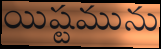
యిష్టమును